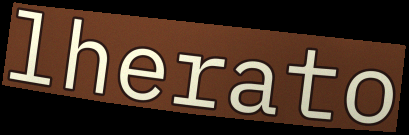
lherato